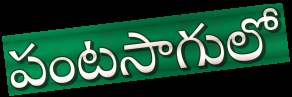
పంటసాగులో